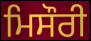
ਮਿਸੌਰੀ